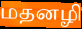
மதனழி